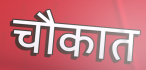
चौकात